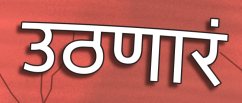
उठणारं